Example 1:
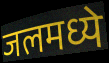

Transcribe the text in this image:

जलमध्ये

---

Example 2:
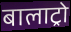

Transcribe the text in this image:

बालाट्रो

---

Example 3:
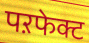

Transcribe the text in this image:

पऱफेक्ट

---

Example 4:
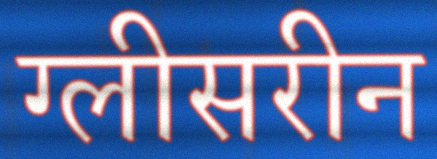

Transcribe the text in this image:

ग्लीसरीन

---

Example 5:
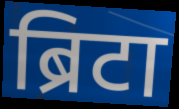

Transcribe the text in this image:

ब्रिटा